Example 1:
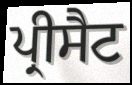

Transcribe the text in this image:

ਪ੍ਰੀਸੈਟ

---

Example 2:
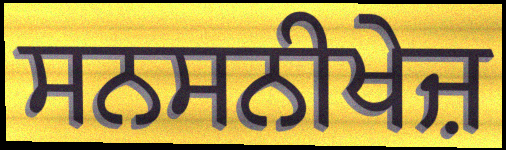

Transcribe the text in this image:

ਸਨਸਨੀਖੇਜ਼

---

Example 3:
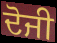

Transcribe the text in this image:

ਦੋਜੀ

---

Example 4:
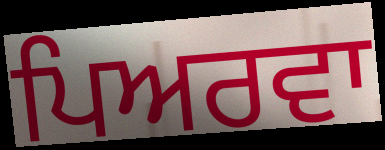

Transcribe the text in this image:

ਪਿਅਰਵਾ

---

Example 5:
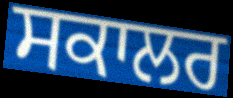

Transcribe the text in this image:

ਸਕਾਲਰ